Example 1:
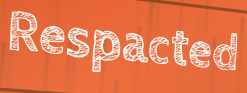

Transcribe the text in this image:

Respacted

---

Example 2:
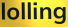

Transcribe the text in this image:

lolling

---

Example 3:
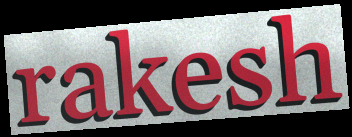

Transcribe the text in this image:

rakesh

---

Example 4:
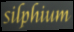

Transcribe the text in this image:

silphium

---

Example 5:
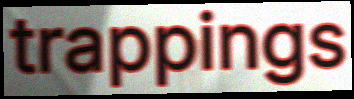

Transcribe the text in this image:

trappings